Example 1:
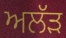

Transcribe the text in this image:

ਅਲੱੜ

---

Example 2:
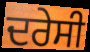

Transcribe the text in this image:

ਦਰੇਸੀ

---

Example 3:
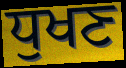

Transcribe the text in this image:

ਧੁਖਣ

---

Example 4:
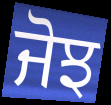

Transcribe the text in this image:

ਜੋਝ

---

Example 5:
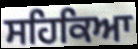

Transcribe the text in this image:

ਸਹਿਕਿਆ